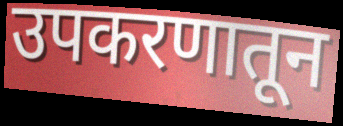
उपकरणातून